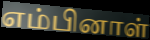
எம்பினாள்